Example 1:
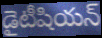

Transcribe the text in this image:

డైటీషియన్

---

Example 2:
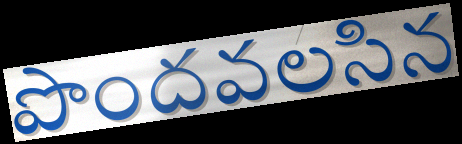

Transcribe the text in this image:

పొందవలసిన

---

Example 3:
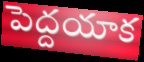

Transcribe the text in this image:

పెద్దయాక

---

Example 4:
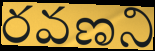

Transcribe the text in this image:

రవణని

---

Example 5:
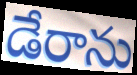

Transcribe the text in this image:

డేరాను